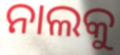
ନାଲକୁ